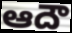
ఆదౌ